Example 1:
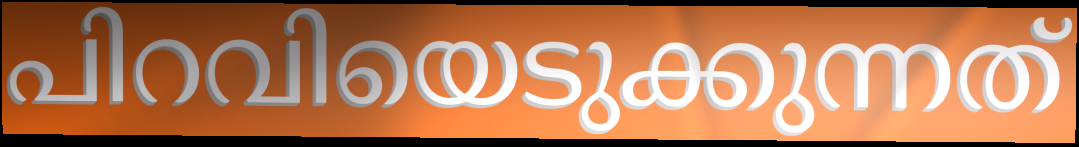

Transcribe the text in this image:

പിറവിയെടുക്കുന്നത്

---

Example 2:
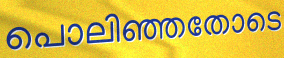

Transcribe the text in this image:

പൊലിഞ്ഞതോടെ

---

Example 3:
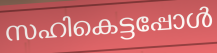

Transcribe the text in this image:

സഹികെട്ടപ്പോൾ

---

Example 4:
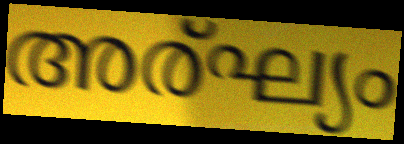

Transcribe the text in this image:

അര്ഘ്യം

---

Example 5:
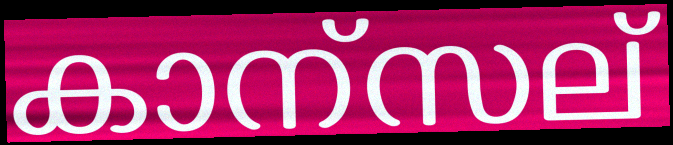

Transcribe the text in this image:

കാന്സല്